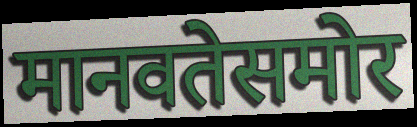
मानवतेसमोर